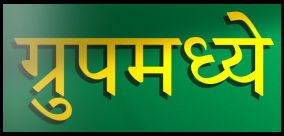
ग्रुपमध्ये